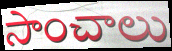
సాంచాలు